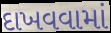
દાખવવામાં